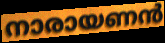
നാരായണൻ